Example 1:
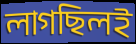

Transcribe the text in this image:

লাগছিলই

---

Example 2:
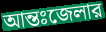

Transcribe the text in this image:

আন্তঃজেলার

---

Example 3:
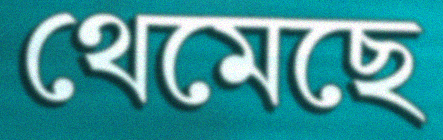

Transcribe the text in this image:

থেমেছে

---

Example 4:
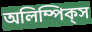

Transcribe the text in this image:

অলিম্পিক্‌স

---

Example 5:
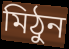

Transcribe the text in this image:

মিঠুন